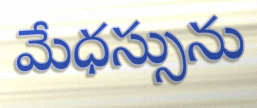
మేధస్సును